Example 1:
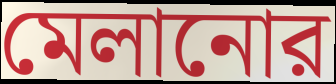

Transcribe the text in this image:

মেলানোর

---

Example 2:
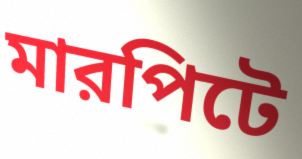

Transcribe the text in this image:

মারপিটে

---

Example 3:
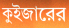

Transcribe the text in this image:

কুইজারের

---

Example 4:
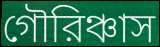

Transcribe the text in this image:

গৌরিঞ্চাস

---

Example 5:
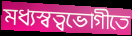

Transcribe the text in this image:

মধ্যস্বত্বভোগীতে